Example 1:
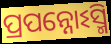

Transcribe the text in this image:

ପ୍ରପନ୍ନୋଽସ୍ମି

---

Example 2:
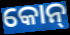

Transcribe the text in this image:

କୋନ୍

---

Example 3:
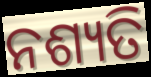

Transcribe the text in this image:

ନଶ୍ୟତି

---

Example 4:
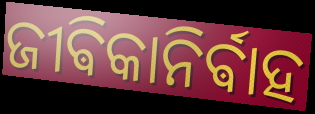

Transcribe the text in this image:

ଜୀଵିକାନିର୍ଵାହ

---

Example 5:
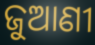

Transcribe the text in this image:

ଜୁଆଣୀ